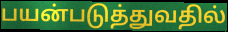
பயன்படுத்துவதில்